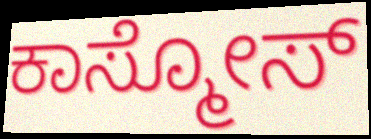
ಕಾಸ್ಮೋಸ್